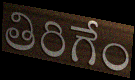
తిరిగేం